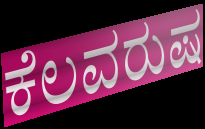
ಕೆಲವರುಷ